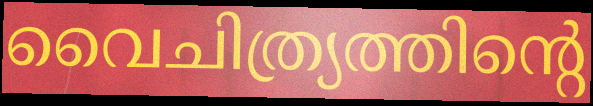
വൈചിത്ര്യത്തിന്റെ